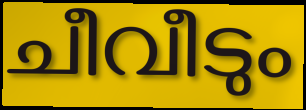
ചീവീടും